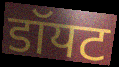
डॉयट